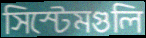
সিস্টেমগুলি